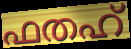
ഫതഹ്